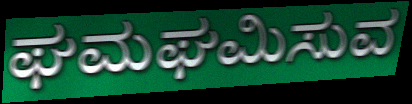
ಘಮಘಮಿಸುವ